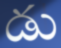
డు